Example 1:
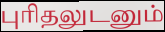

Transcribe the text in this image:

புரிதலுடனும்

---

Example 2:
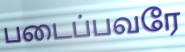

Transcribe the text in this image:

படைப்பவரே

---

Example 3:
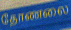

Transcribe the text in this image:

தோணலை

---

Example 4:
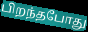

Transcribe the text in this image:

பிறந்தபோது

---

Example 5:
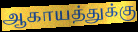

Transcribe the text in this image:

ஆகாயத்துக்கு